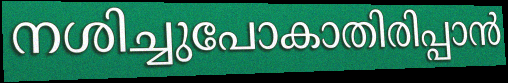
നശിച്ചുപോകാതിരിപ്പാൻ